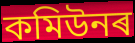
কমিউনৰ